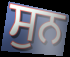
ਸੁਨ